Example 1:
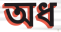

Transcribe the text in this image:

অধ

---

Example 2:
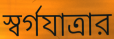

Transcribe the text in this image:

স্বর্গযাত্রার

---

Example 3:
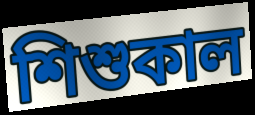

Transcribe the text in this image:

শিশুকাল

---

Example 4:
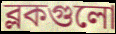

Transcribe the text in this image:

ব্লকগুলো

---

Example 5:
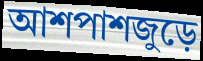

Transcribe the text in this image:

আশপাশজুড়ে